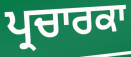
ਪ੍ਰਚਾਰਕਾ